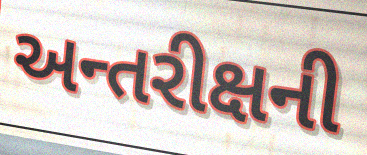
અન્તરીક્ષની